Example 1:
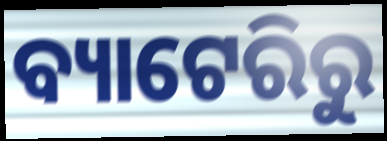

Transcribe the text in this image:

ବ୍ୟାଟେରିରୁ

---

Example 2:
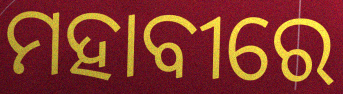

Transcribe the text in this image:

ମହାବୀରେ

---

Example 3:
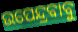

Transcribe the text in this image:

ଉପେନ୍ଦ୍ରବାବୁ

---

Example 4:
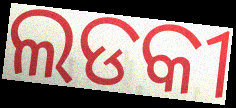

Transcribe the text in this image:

ଲଡକୀ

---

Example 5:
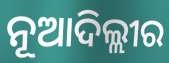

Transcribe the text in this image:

ନୂଆଦିଲ୍ଲୀର